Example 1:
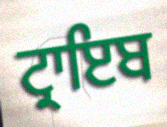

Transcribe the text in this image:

ਟ੍ਰਾਇਬ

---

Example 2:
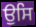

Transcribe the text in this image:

ਉਸਿ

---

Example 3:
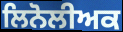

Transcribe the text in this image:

ਲਿਨੋਲੀਅਕ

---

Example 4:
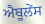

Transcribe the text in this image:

ਐਬੂਲੇਂਸ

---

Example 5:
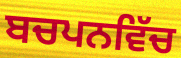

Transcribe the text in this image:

ਬਚਪਨਵਿੱਚ